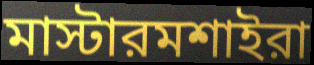
মাস্টারমশাইরা